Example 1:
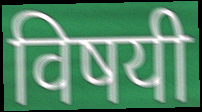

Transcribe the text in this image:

विषयी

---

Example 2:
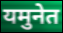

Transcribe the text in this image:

यमुनेत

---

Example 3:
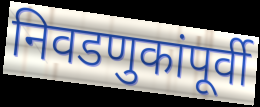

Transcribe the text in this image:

निवडणुकांपूर्वी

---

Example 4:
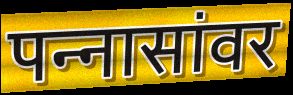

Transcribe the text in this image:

पन्नासांवर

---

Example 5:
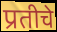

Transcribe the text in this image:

प्रतीचे